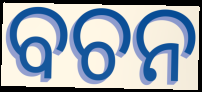
ବଚନ